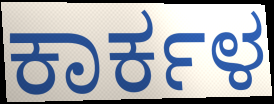
ಕಾರ್ಕಳ